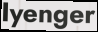
Iyenger